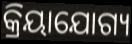
କ୍ରିୟାଯୋଗ୍ୟ